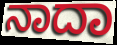
ನಾದಾ